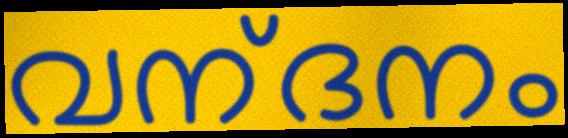
വന്‌ദനം